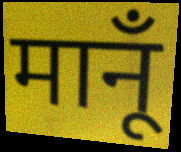
मानूँ